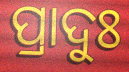
ପ୍ରାଦୁଃ